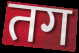
तग